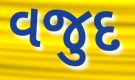
વજુદ